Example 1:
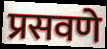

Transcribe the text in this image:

प्रसवणे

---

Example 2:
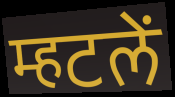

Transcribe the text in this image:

म्हटलें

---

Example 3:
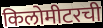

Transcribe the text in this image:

किलोमीटरची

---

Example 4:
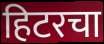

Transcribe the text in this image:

हिटरचा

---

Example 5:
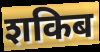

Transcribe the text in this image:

शकिब